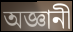
অজ্ঞানী